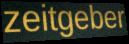
zeitgeber